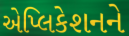
એપ્લિકેશનને